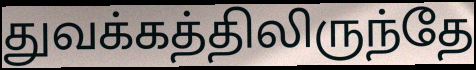
துவக்கத்திலிருந்தே